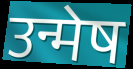
उन्मेष